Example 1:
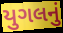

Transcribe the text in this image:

યુગલનું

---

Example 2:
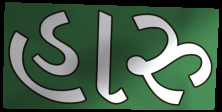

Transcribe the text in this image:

હારુ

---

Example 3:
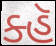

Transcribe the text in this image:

ક્હૅ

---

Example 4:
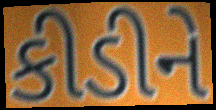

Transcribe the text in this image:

કીડીને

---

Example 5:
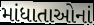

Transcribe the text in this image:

માંધાતાઓનાં